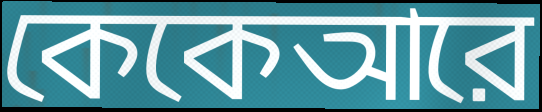
কেকেআরে